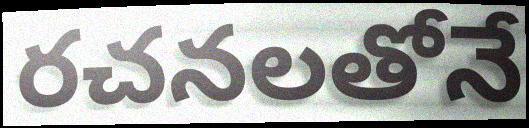
రచనలతోనే